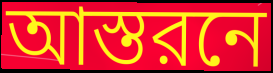
আস্তরনে